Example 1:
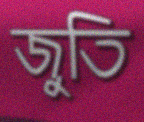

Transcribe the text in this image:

জুতি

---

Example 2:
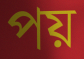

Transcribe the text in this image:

পয়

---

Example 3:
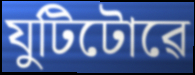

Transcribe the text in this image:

যুটিটোৱে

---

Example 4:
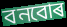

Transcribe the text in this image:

বনবোৰ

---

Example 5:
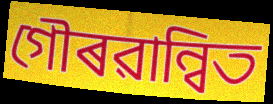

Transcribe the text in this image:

গৌৰৱান্বিত